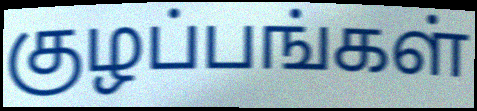
குழப்பங்கள்